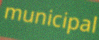
municipal